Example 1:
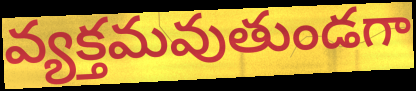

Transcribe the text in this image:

వ్యక్తమవుతుండగా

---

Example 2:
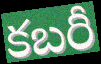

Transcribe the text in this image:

కబరీ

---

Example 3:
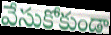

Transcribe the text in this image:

వేసుకోకుండా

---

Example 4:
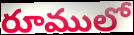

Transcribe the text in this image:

రూములో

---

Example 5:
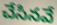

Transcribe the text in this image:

చేసినవే